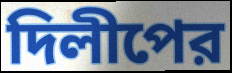
দিলীপের